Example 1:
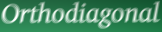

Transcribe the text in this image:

Orthodiagonal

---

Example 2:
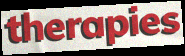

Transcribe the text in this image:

therapies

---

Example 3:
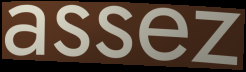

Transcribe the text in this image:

assez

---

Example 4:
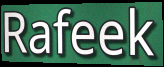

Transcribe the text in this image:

Rafeek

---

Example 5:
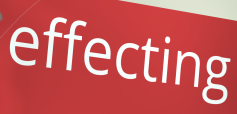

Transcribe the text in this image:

effecting